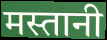
मस्‍तानी